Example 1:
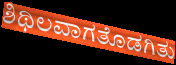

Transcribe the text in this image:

ಶಿಥಿಲವಾಗತೊಡಗಿತು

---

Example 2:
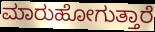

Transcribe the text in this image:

ಮಾರುಹೋಗುತ್ತಾರೆ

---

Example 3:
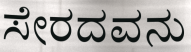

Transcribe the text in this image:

ಸೇರದವನು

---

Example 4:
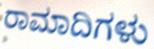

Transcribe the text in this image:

ರಾಮಾದಿಗಳು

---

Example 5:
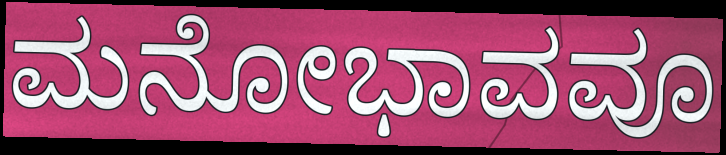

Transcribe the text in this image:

ಮನೋಭಾವವೂ